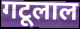
गटूलाल